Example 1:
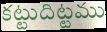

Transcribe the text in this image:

కట్టుదిట్టము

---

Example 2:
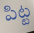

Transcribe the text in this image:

పిట్ట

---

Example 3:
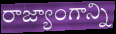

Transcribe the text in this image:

రాజ్యాంగాన్ని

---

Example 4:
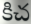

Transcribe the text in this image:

కిచ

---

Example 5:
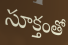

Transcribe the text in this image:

సూక్తంతో